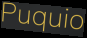
Puquio